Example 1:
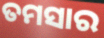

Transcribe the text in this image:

ତମସାର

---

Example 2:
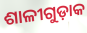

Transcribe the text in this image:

ଶାଳୀଗୁଡ଼ାକ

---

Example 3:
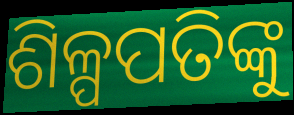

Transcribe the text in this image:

ଶିଳ୍ପପତିଙ୍କୁ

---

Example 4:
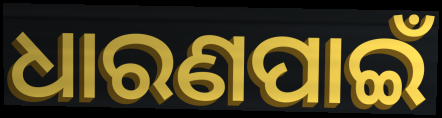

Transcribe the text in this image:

ଧାରଣପାଇଁ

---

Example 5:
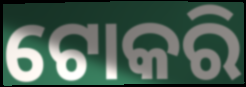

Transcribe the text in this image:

ଟୋକରି